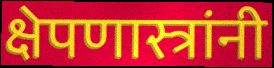
क्षेपणास्त्रांनी